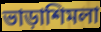
ভাড়াশিমলা